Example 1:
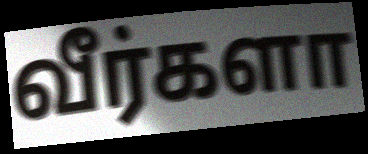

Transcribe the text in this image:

வீர்களா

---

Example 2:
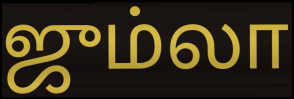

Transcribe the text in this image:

ஜும்லா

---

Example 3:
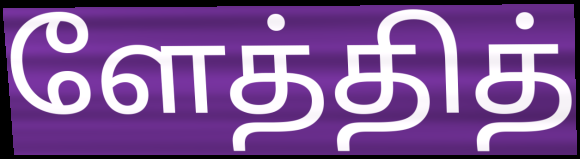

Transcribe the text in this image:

ளேத்தித்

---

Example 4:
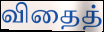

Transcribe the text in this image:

விதைத்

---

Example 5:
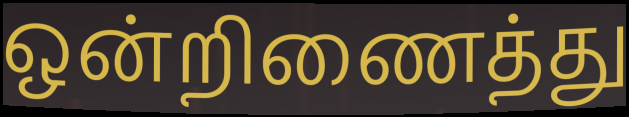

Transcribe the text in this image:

ஒன்றிணைத்து